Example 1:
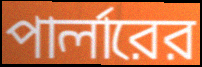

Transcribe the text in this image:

পার্লারের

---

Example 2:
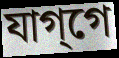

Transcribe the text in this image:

যাগ্‌গে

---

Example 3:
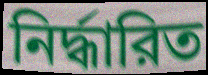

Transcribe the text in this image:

নির্দ্ধারিত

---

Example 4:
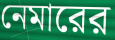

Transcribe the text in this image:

নেমারের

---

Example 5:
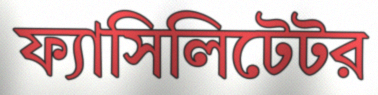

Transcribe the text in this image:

ফ্যাসিলিটেটর